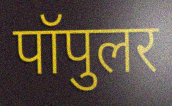
पॉपुलर